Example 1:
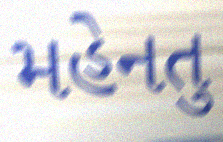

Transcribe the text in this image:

મહેનતુ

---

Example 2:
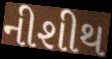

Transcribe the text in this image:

નીશીથ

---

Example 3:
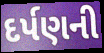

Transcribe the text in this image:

દર્પણની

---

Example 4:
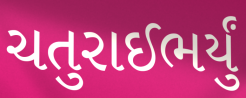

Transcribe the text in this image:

ચતુરાઈભર્યું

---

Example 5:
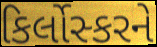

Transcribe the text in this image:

કિર્લોસ્કરને